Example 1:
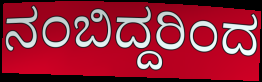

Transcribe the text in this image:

ನಂಬಿದ್ದರಿಂದ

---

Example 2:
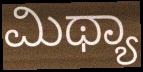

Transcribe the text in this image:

ಮಿಥ್ಯಾ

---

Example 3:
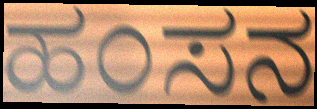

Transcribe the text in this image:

ಹಂಸನ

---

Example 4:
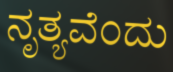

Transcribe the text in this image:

ನೃತ್ಯವೆಂದು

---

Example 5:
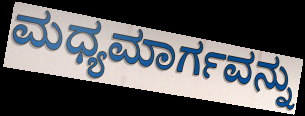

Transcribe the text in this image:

ಮಧ್ಯಮಾರ್ಗವನ್ನು